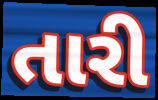
તારી